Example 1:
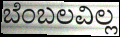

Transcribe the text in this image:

ಬೆಂಬಲವಿಲ್ಲ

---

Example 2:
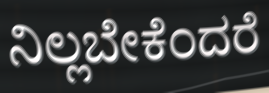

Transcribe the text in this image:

ನಿಲ್ಲಬೇಕೆಂದರೆ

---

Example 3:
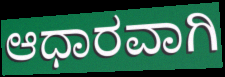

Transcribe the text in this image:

ಆಧಾರವಾಗಿ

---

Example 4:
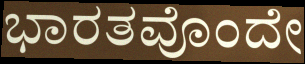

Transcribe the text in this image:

ಭಾರತವೊಂದೇ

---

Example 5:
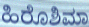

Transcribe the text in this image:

ಹಿರೊಶಿಮಾ